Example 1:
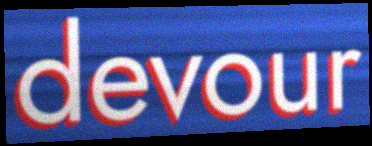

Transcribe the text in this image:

devour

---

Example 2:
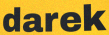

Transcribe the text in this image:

darek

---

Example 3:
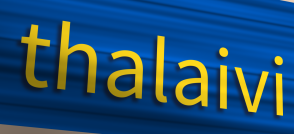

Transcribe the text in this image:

thalaivi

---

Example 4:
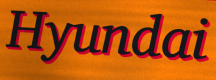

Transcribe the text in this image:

Hyundai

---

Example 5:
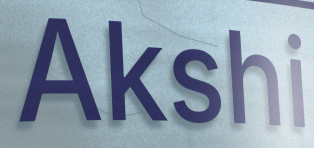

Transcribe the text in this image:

Akshi